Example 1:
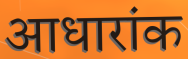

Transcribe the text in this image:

आधारांक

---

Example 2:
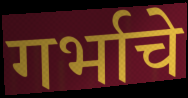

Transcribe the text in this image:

गर्भाचे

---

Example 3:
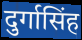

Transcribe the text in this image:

दुर्गासिंह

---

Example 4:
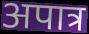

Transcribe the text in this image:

अपात्र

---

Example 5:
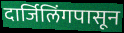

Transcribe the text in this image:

दार्जिलिंगपासून